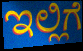
ಇಲ್ಲಿಗೆ